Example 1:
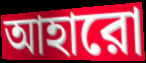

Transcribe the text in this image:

আহারো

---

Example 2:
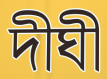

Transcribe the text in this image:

দীঘী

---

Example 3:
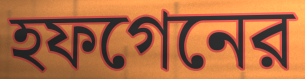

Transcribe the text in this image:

হফগেনের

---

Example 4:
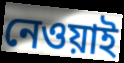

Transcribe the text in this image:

নেওয়াই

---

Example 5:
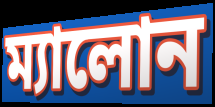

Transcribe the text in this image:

ম্যালোন